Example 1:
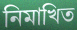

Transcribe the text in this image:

নিমাখিত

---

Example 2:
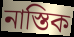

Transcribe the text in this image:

নাস্তিক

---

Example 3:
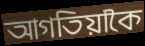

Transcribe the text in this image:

আগতিয়াকৈ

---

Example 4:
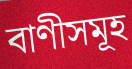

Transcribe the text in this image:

বাণীসমূহ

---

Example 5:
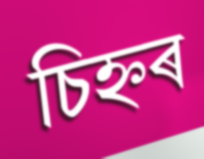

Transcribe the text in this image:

চিহ্নৰ